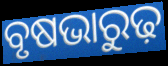
ବୃଷଭାରୁଢ଼